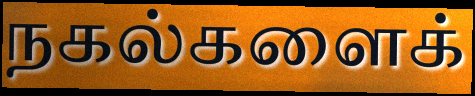
நகல்களைக்